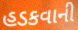
હડકવાની